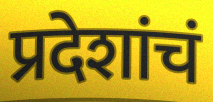
प्रदेशांचं